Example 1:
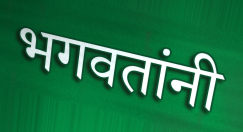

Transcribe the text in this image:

भगवतांनी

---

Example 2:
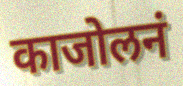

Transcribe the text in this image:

काजोलनं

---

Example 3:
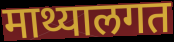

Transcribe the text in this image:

माथ्यालगत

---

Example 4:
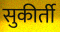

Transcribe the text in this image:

सुकीर्ती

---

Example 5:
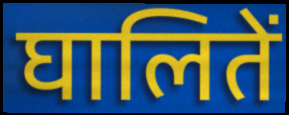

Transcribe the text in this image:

घालितें